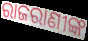
ରାଜରାଣୀଙ୍କ